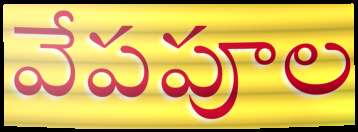
వేపపూల